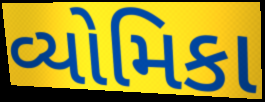
વ્યોમિકા